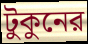
টুকুনের